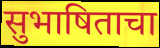
सुभाषिताचा